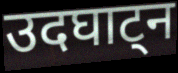
उदघाट्न